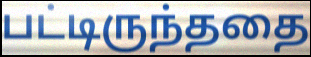
பட்டிருந்ததை